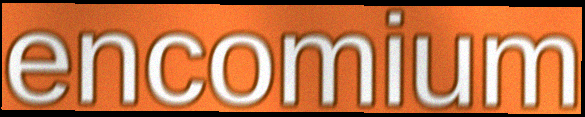
encomium